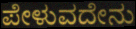
ಪೇಳುವದೇನು